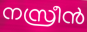
നസ്രീൻ